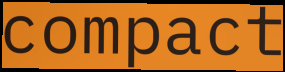
compact